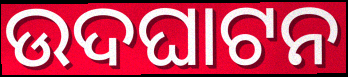
ଉଦଘାଟନ